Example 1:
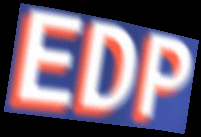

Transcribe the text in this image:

EDP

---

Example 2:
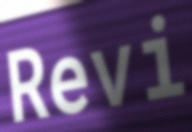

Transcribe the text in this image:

Revi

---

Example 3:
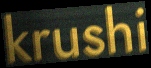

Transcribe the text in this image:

krushi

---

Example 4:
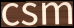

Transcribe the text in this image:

csm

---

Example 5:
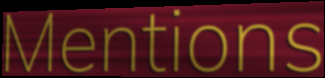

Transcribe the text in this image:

Mentions